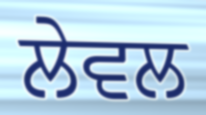
ਲੇਵਲ